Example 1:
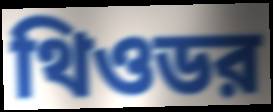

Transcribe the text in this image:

থিওডর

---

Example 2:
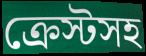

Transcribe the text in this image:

ক্রেস্টসহ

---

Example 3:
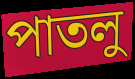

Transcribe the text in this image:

পাতলু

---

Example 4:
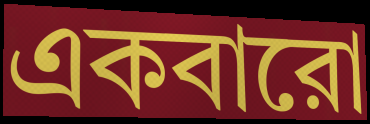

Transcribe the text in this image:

একবারো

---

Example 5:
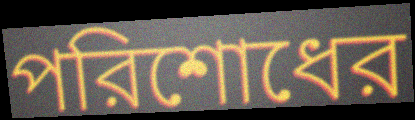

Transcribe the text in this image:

পরিশোধের